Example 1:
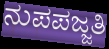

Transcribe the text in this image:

ನುಪಪಜ್ಜತಿ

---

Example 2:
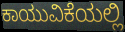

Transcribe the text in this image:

ಕಾಯುವಿಕೆಯಲ್ಲಿ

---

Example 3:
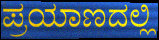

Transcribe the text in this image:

ಪ್ರಯಾಣದಲ್ಲಿ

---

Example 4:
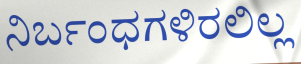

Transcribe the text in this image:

ನಿರ್ಬಂಧಗಳಿರಲಿಲ್ಲ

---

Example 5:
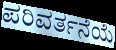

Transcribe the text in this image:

ಪರಿವರ್ತನೆಯೆ